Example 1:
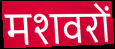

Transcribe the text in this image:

मशवरों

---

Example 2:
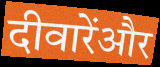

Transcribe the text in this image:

दीवारेंऔर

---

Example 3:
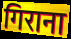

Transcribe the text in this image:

गिराना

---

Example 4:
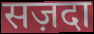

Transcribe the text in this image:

सज़दा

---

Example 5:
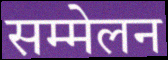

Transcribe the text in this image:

सम्‍मेलन